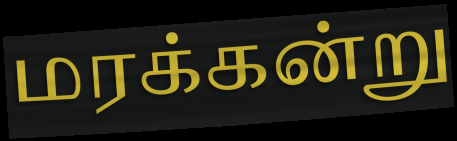
மரக்கன்று